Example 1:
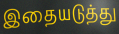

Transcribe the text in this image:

இதையடுத்து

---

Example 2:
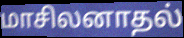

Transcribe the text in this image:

மாசிலனாதல்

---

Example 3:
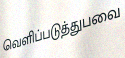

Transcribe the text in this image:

வெளிப்படுத்துபவை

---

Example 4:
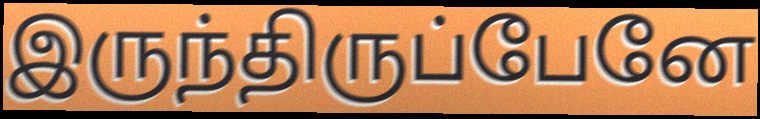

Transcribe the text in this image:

இருந்திருப்பேனே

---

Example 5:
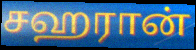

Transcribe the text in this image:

சஹரான்